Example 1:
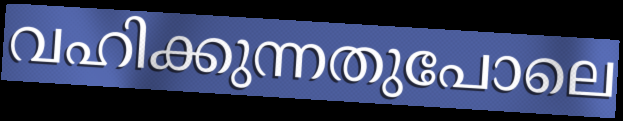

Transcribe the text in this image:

വഹിക്കുന്നതുപോലെ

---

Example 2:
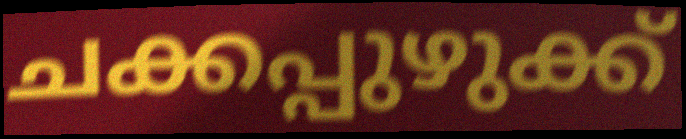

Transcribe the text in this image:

ചക്കപ്പുഴുക്ക്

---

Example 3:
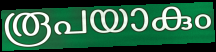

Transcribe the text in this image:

രൂപയാകും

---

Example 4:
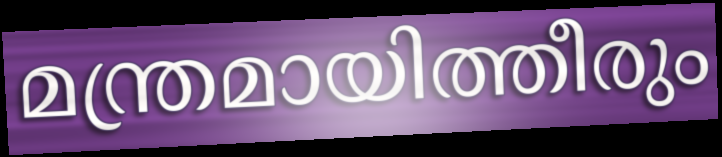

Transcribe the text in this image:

മന്ത്രമായിത്തീരും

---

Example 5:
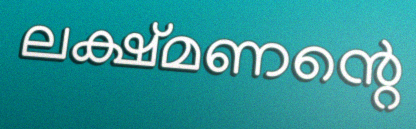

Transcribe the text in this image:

ലക്ഷ്മണന്റെ